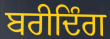
ਬਰੀਦਿੰਗ